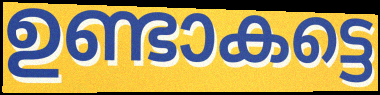
ഉണ്ടാകട്ടെ